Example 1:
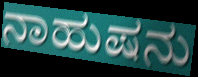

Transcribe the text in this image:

ನಾಹುಷನು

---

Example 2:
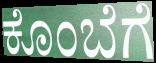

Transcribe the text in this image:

ಕೊಂಬೆಗೆ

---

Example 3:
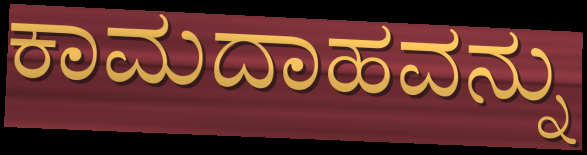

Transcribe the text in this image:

ಕಾಮದಾಹವನ್ನು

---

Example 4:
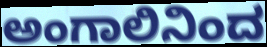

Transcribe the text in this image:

ಅಂಗಾಲಿನಿಂದ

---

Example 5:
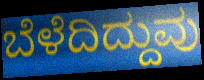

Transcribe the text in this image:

ಬೆಳೆದಿದ್ದುವು